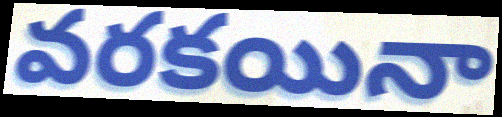
వరకయినా